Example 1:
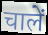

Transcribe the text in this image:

चालें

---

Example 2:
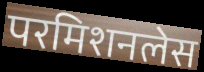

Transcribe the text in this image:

परमिशनलेस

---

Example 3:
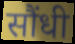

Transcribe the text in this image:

सौंधी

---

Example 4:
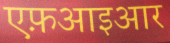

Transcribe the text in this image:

एफ़आइआर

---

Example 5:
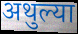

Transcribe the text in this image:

अथुल्या